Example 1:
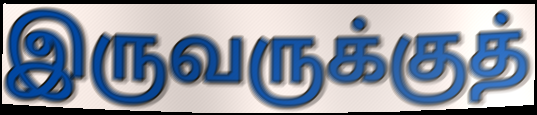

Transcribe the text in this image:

இருவருக்குத்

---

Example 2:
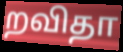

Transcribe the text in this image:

றவிதா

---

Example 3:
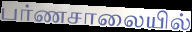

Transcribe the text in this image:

பர்ணசாலையில்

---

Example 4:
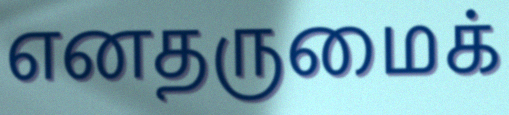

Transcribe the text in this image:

எனதருமைக்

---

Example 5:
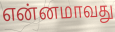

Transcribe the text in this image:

என்னமாவது